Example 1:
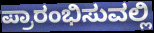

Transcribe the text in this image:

ಪ್ರಾರಂಭಿಸುವಲ್ಲಿ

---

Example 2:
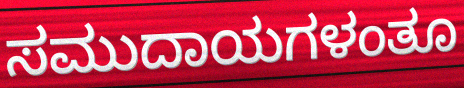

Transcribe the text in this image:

ಸಮುದಾಯಗಳಂತೂ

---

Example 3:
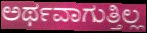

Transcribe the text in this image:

ಅರ್ಥವಾಗುತ್ತಿಲ್ಲ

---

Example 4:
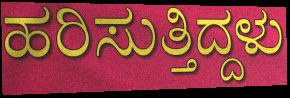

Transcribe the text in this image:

ಹರಿಸುತ್ತಿದ್ದಳು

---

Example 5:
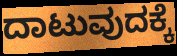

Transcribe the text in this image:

ದಾಟುವುದಕ್ಕೆ